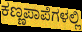
ಕಣ್ಣಪಾಪೆಗಳಲ್ಲಿ